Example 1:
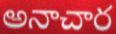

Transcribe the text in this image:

అనాచార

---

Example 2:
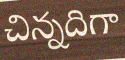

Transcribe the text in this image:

చిన్నదిగా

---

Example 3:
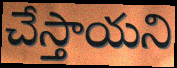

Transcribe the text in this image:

చేస్తాయని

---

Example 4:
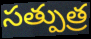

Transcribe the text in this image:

సత్పుత్ర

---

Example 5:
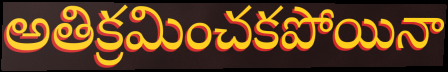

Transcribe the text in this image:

అతిక్రమించకపోయినా